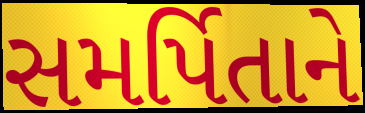
સમર્પિતાને